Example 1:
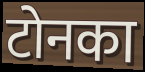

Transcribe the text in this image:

टोनका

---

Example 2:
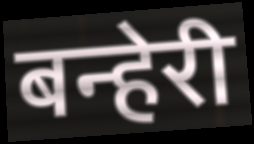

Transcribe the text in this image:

बन्हेरी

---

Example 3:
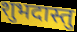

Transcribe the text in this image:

शुभदास्तु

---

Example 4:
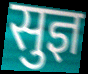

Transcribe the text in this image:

सुज्ञ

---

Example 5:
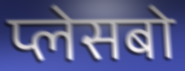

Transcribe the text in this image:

प्लेसबो